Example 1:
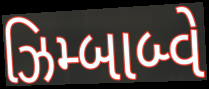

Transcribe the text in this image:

ઝિમ્બાબ્વે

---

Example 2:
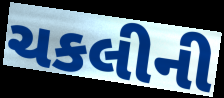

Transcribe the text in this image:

ચકલીની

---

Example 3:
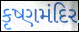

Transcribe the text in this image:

કૃષ્ણમંદિર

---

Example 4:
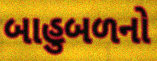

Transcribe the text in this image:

બાહુબળનો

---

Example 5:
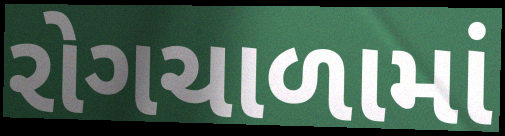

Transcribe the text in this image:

રોગચાળામાં